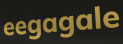
eegagale